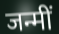
जन्मीं